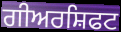
ਗੀਅਰਸ਼ਿਫਟ